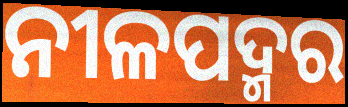
ନୀଳପଦ୍ମର